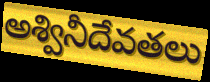
అశ్వినీదేవతలు